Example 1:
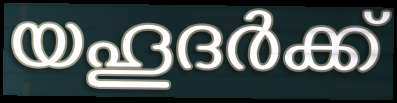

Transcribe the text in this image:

യഹൂദർക്ക്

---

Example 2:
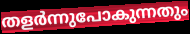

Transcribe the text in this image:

തളർന്നുപോകുന്നതും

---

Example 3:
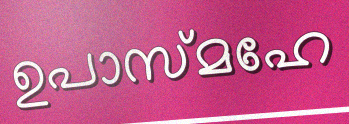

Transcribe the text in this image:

ഉപാസ്മഹേ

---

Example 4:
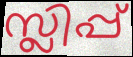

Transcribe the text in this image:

സ്ലിപ്പ്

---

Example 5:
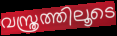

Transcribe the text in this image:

വസ്ത്രത്തിലൂടെ